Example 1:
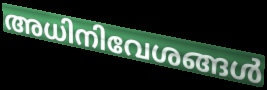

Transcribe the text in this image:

അധിനിവേശങ്ങൾ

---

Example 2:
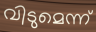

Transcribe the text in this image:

വിടുമെന്ന്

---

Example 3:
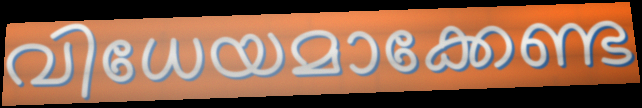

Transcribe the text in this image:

വിധേയമാക്കേണ്ട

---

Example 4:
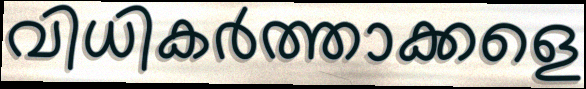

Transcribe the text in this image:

വിധികർത്താക്കളെ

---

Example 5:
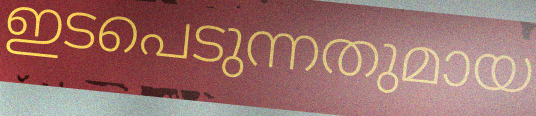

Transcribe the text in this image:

ഇടപെടുന്നതുമായ